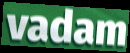
vadam